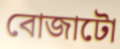
বোজাটো